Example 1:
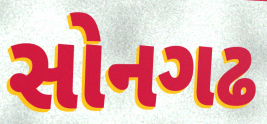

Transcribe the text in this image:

સોનગઢ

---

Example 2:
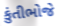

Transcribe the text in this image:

કુંતીભોજે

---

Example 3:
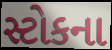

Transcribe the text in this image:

સ્ટોકના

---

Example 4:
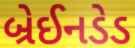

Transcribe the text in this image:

બ્રેઈનડેડ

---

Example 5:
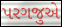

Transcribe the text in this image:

પરગજુએ